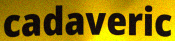
cadaveric